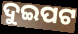
ଦୁଇପଟ